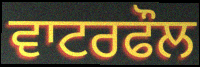
ਵਾਟਰਫੌਲ